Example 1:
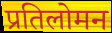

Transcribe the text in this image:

प्रतिलोमन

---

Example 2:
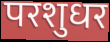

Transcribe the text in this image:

परशुधर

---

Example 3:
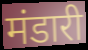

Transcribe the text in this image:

मंडारी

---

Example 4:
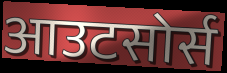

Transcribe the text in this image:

आउटसोर्स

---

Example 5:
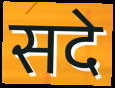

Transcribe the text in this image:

सदे